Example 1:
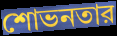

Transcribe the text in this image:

শোভনতার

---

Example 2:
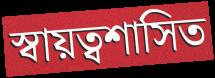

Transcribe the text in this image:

স্বায়ত্বশাসিত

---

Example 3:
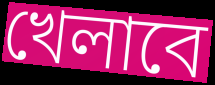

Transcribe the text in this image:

খেলাবে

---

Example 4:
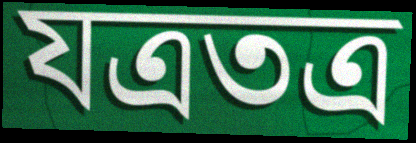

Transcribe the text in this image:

যত্রতত্র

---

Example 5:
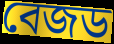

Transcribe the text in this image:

বেজড